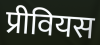
प्रीवियस